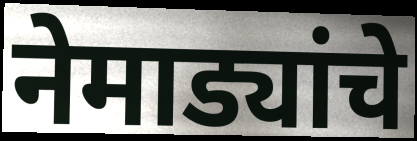
नेमाड्यांचे